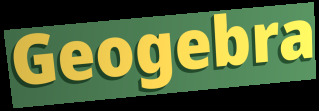
Geogebra